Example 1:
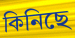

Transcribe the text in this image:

কিনিছে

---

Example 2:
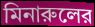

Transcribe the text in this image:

মিনারুলের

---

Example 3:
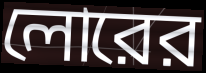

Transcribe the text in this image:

লোরের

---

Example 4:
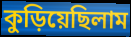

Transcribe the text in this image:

কুড়িয়েছিলাম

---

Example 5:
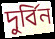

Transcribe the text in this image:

দুর্বিন